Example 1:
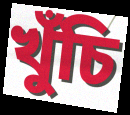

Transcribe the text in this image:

খুঁচি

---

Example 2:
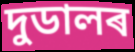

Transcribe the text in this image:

দুডালৰ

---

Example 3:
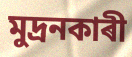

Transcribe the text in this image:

মুদ্ৰনকাৰী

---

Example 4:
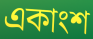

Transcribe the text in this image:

একাংশ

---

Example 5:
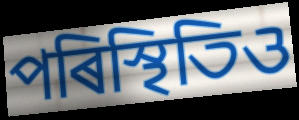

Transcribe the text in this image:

পৰিস্থিতিও